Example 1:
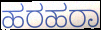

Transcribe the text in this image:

ಹರಹರಾ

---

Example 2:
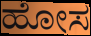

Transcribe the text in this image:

ಹೋಸ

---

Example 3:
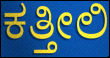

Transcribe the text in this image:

ಕತ್ತೀಲಿ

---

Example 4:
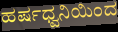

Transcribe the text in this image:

ಹರ್ಷಧ್ವನಿಯಿಂದ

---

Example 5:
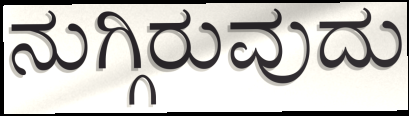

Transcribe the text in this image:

ನುಗ್ಗಿರುವುದು